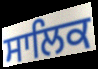
ਸਾਲਿਕ